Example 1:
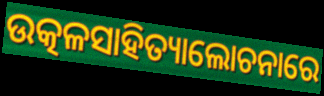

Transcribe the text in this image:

ଉତ୍କଳସାହିତ୍ୟାଲୋଚନାରେ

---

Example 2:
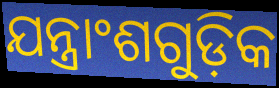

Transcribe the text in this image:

ଯନ୍ତ୍ରାଂଶଗୁଡ଼ିକ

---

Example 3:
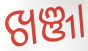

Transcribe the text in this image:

ଖଞ୍ଜା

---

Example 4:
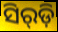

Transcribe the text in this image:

ସିର୍‌ଡ଼ି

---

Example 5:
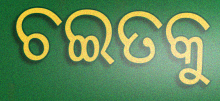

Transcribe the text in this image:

ଚଇତକୁ